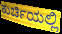
ಕುರ್ಚಿಯಲ್ಲಿ